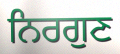
ਨਿਰਗੁਣ